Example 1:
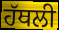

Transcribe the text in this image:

ਹੱਥਲੀ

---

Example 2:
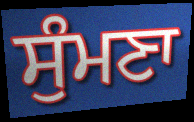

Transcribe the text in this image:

ਸੁੰਮਣਾ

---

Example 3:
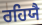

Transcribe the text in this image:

ਰਹਿਯੈ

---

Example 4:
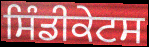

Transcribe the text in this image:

ਸਿੰਡੀਕੇਟਸ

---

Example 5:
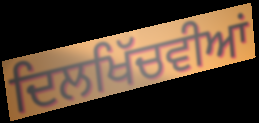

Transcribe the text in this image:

ਦਿਲਖਿੱਚਵੀਆਂ